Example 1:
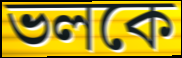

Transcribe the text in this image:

ভলকে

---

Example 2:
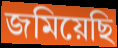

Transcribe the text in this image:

জমিয়েছি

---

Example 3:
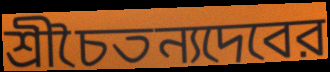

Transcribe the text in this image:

শ্রীচৈতন্যদেবের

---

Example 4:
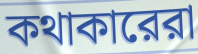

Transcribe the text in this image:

কথাকারেরা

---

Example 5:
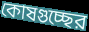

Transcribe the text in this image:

কোষগুচ্ছের